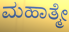
ಮಹಾತ್ಮೇ